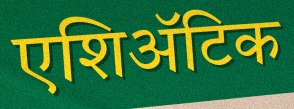
एशिॲटिक